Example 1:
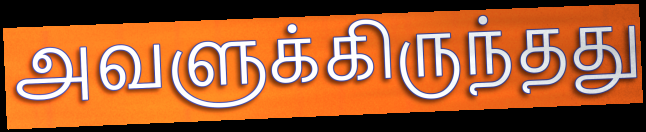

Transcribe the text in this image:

அவளுக்கிருந்தது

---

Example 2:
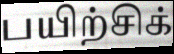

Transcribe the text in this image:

பயிற்சிக்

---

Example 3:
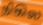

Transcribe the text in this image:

நிகில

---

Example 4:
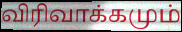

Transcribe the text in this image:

விரிவாக்கமும்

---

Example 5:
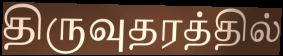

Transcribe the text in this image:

திருவுதரத்தில்